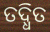
ତଦ୍ଧିତ